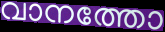
വാനത്തോ